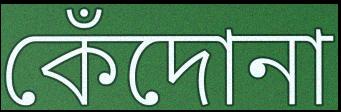
কেঁদোনা